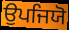
ਉਪਜਿਯੋ